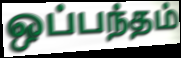
ஒப்பந்தம்